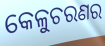
କେଳୁଚରଣର